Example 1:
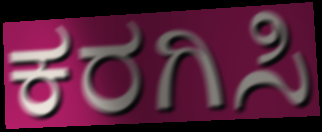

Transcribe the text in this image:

ಕರಗಿಸಿ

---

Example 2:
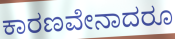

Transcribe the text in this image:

ಕಾರಣವೇನಾದರೂ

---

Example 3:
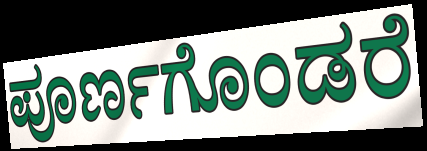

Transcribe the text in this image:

ಪೂರ್ಣಗೊಂಡರೆ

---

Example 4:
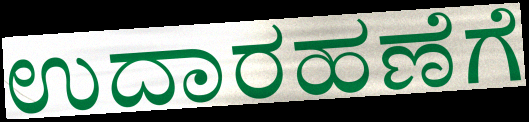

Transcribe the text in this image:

ಉದಾರಹಣೆಗೆ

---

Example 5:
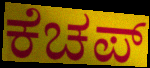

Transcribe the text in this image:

ಕೆಚಪ್